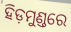
ହିଡ଼ମୁଣ୍ଡରେ